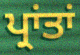
ਪ੍ਰਾਂਤਾਂ